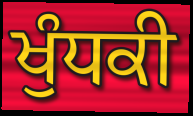
ਖੁੰਧਕੀ